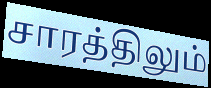
சாரத்திலும்